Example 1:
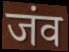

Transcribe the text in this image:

जंव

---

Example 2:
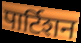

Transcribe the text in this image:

पार्टिशन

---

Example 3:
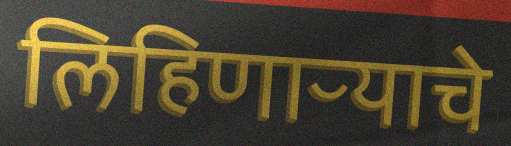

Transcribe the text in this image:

लिहिणाऱ्याचे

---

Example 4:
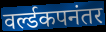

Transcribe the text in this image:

वर्ल्डकपनंतर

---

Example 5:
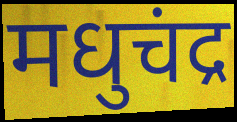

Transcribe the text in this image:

मधुचंद्र